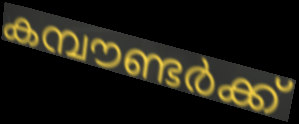
കമ്പൗണ്ടർക്ക്